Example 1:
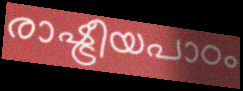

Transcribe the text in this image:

രാഷ്ട്രീയപാഠം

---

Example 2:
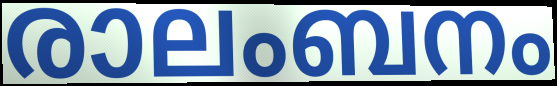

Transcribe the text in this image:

രാലംബനം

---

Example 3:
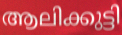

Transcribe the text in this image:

ആലിക്കുട്ടി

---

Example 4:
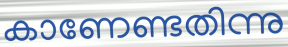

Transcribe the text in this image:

കാണേണ്ടതിന്നു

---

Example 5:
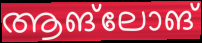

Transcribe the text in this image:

ആങ്‌ലോങ്